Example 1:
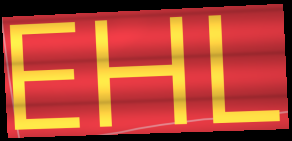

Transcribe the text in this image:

EHL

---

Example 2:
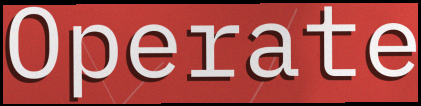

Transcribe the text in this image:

Operate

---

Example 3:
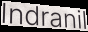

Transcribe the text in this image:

Indranil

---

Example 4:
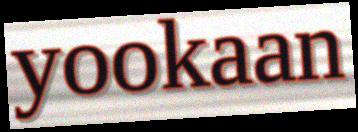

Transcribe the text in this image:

yookaan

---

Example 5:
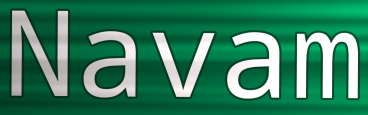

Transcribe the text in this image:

Navam